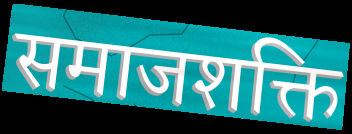
समाजशक्ति